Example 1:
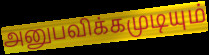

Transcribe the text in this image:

அனுபவிக்கமுடியும்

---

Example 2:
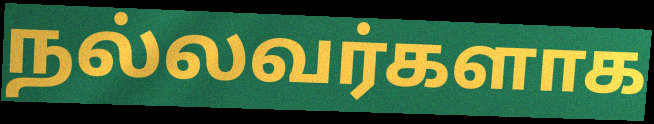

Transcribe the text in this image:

நல்லவர்களாக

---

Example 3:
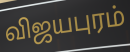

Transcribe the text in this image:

விஜயபுரம்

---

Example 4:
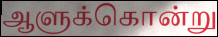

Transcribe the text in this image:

ஆளுக்கொன்று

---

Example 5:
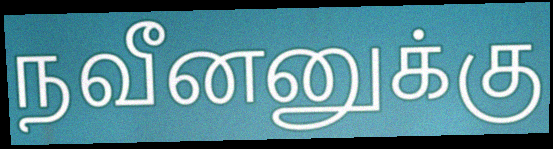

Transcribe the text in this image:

நவீனனுக்கு